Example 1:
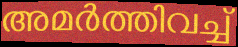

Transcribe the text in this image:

അമർത്തിവച്ച്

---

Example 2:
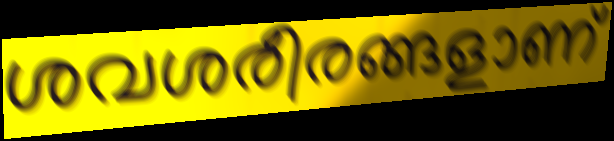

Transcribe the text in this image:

ശവശരീരങ്ങളാണ്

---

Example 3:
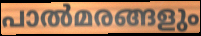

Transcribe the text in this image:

പാൽമരങ്ങളും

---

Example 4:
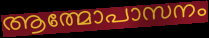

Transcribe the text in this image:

ആത്മോപാസനം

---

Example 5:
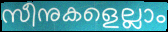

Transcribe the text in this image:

സീനുകളെല്ലാം